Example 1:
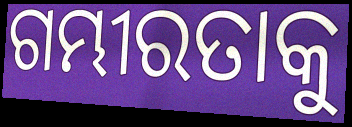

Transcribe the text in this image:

ଗମ୍ଭୀରତାକୁ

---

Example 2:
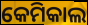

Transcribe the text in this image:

କେମିକାଲ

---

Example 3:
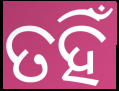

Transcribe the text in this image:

ତହିଁ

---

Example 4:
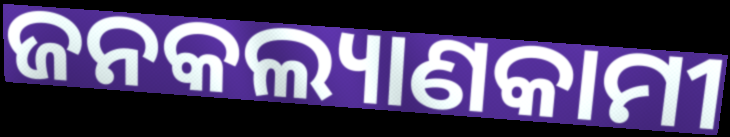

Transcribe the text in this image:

ଜନକଲ୍ୟାଣକାମୀ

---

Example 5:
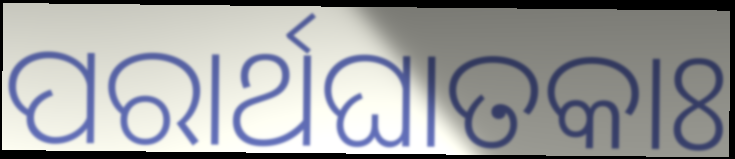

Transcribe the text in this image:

ପରାର୍ଥଘାତକାଃ